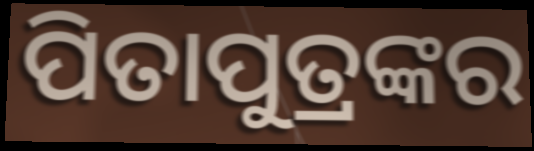
ପିତାପୁତ୍ରଙ୍କର